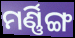
ମର୍ଣ୍ଣିଙ୍ଗ